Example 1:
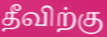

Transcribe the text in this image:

தீவிற்கு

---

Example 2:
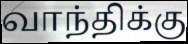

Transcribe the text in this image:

வாந்திக்கு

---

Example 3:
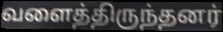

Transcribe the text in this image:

வளைத்திருந்தனர்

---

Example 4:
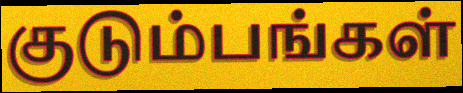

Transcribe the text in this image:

குடும்பங்கள்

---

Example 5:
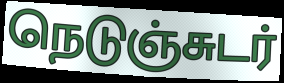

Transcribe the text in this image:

நெடுஞ்சுடர்